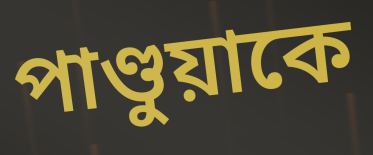
পাণ্ডুয়াকে